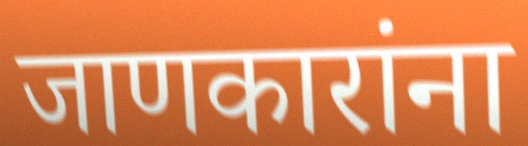
जाणकारांना